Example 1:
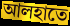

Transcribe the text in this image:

আলহাতে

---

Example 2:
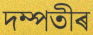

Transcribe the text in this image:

দম্পতীৰ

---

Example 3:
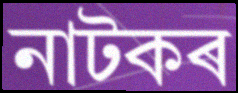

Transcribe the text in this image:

নাটকৰ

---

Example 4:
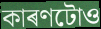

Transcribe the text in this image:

কাৰণটোও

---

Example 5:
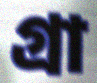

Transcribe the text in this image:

গ্ৰা